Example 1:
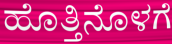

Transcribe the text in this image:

ಹೊತ್ತಿನೊಳಗೆ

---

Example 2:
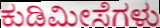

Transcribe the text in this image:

ಕುಡಿಮೀಸೆಗಳು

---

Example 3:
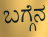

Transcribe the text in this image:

ಬಗ್ಗೆನ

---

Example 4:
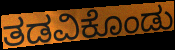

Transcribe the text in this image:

ತಡವಿಕೊಂಡು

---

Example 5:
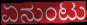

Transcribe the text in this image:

ಏನುಂಟು